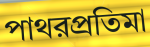
পাথরপ্রতিমা